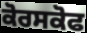
ਕੋਰਸਕੋਫ